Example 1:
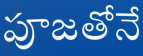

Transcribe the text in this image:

పూజతోనే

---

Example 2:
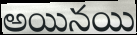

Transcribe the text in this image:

అయినయి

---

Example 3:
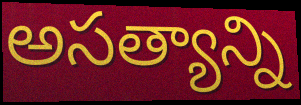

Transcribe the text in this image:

అసత్యాన్ని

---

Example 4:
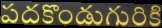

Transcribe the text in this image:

పదకొండుగురికి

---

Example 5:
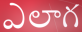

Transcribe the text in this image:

ఎలాగ